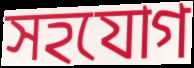
সহযোগ